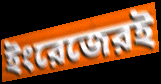
ইংরেজেরই